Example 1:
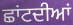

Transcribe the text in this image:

ਛਾਂਟਦੀਆਂ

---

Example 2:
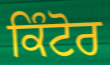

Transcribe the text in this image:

ਕਿੰਟੋਰ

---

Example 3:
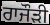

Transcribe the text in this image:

ਰਾਜੌੜੀ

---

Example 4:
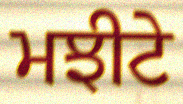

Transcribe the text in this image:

ਮਝੀਟੇ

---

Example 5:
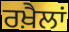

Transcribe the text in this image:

ਰਖ਼ੈਲਾਂ